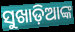
ସୁଖାଡ଼ିଆଙ୍କ